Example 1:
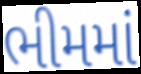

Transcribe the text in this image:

ભીમમાં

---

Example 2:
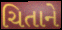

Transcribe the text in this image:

ચિતાને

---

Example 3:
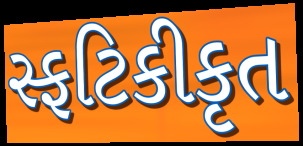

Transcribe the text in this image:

સ્ફટિકીકૃત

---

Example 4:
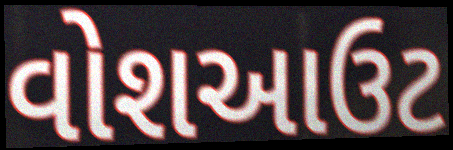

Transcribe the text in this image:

વોશઆઉટ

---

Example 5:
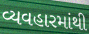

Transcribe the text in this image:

વ્યવહારમાંથી